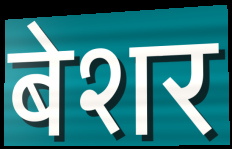
बेशर